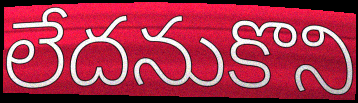
లేదనుకొని